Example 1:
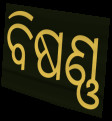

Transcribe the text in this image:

ବିଷଣ୍ଣ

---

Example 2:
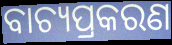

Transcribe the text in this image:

ବାଚ୍ୟପ୍ରକରଣ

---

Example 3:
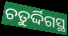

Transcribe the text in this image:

ଚତୁର୍ଦ୍ଦିଗସ୍ଥ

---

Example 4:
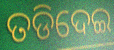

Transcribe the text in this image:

ତଡିଦେଇ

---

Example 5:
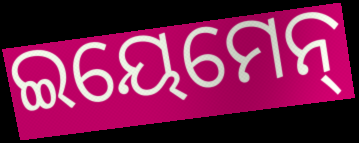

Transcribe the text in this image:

ଇୟେମେନ୍